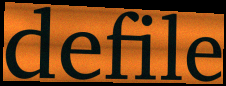
defile